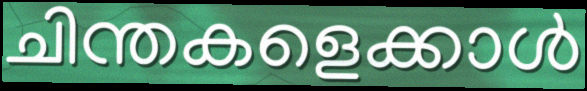
ചിന്തകളെക്കാൾ